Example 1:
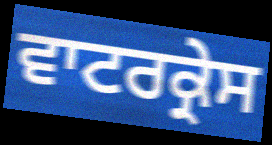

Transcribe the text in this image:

ਵਾਟਰਕ੍ਰੇਸ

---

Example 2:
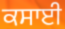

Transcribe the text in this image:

ਕਸਾਈ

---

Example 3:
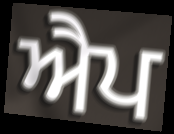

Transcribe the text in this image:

ਐਪ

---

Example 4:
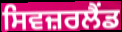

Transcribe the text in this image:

ਸਿਵਜ਼ਰਲੈਂਡ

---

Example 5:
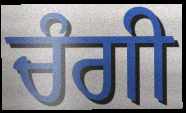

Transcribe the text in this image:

ਚੰਗੀ